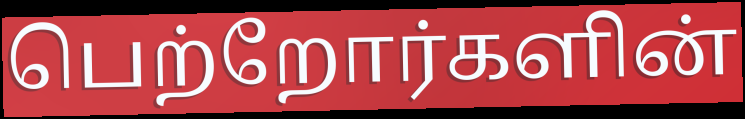
பெற்றோர்களின்